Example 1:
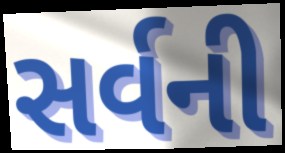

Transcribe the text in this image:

સર્વની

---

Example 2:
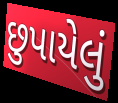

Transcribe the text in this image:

છુપાયેલું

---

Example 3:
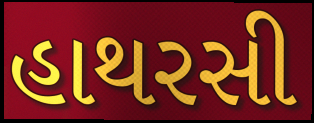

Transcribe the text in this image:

હાથરસી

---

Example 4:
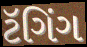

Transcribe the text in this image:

ટૅગિંગ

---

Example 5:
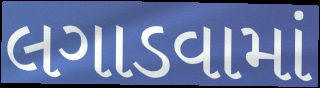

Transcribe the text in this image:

લગાડવામાં